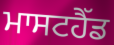
ਮਾਸਟਹੈੱਡ